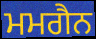
ਮਮਗੈਨ